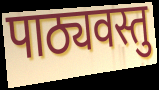
पाठ्यवस्तु